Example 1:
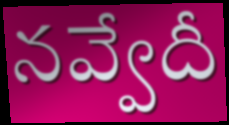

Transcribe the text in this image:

నవ్వేదీ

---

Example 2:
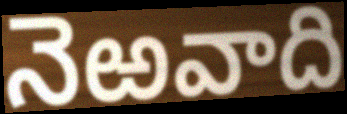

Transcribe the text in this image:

నెఱవాది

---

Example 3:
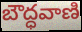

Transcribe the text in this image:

బౌద్ధవాణి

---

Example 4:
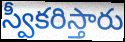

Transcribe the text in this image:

స్వీకరిస్తారు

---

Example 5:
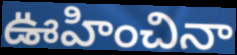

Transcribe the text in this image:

ఊహించినా